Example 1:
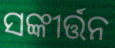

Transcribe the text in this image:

ସଙ୍କୀର୍ତ୍ତନ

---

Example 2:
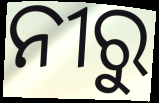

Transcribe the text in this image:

ନୀରୁ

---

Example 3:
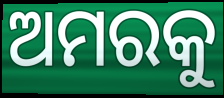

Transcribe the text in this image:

ଅମରକୁ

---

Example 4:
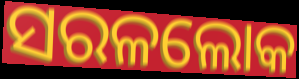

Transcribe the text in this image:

ସରଳଲୋକ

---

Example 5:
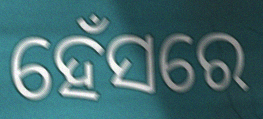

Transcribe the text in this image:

ହେଁସରେ